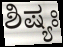
ಶಿಷ್ಯಃ